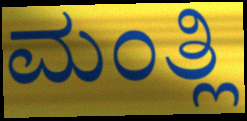
ಮಂತ್ಲಿ